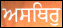
ਅਸਥਿਰੁ